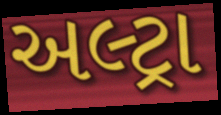
અલ્ટ્રા